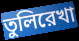
তুলিরেখা